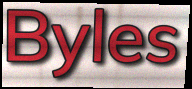
Byles